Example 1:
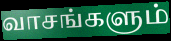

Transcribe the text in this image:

வாசங்களும்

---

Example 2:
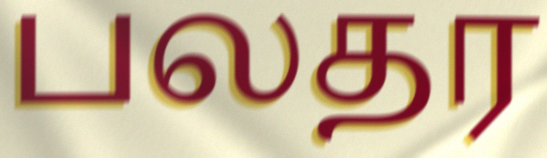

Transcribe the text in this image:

பலதர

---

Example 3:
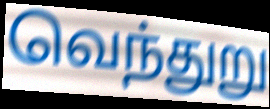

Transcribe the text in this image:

வெந்துறு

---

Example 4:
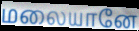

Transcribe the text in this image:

மலையானே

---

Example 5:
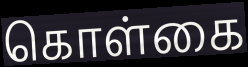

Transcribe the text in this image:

கொள்கை